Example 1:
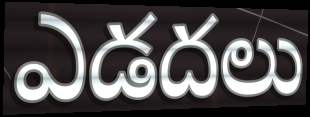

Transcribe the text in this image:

ఎడదలు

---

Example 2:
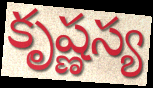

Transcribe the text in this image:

కృష్ణస్య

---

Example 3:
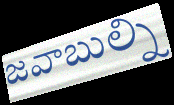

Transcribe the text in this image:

జవాబుల్ని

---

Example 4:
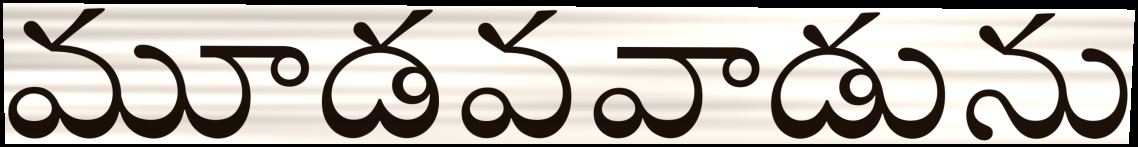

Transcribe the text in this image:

మూడవవాడును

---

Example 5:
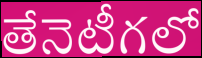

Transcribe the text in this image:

తేనెటీగలో